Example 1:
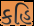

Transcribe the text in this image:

કહિ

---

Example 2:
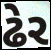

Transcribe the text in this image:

ઢેર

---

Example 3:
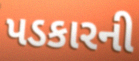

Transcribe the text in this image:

પડકારની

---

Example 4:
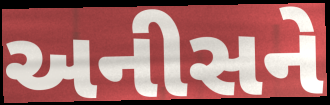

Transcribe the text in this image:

અનીસને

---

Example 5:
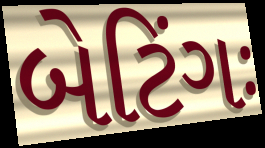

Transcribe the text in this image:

બેટિંગઃ